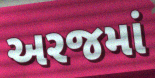
અરજમાં